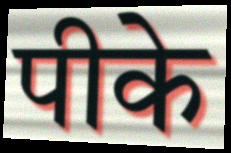
पीके